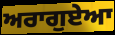
ਅਰਾਗੁਏਆ